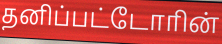
தனிப்பட்டோரின்